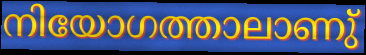
നിയോഗത്താലാണു്